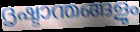
ദൃഷ്ടാന്തങ്ങളും